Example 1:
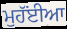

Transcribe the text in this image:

ਮੁਹੱਂਈਆ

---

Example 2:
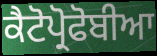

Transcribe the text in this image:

ਕੈਟੋਪ੍ਰੋਫੋਬੀਆ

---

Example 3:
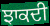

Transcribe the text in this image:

ਝਾਕਦੀ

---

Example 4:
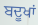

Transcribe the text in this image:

ਬਦੂਖਾਂ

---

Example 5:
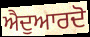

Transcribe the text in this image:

ਐਦੁਆਰਦੋ